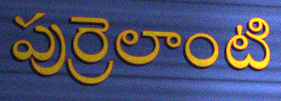
పుర్రెలాంటి